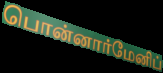
பொன்னார்மேனிப்